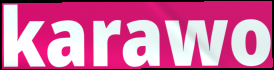
karawo